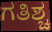
ಗತಿಶ್ಚ